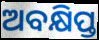
ଅବକ୍ଷିପ୍ତ